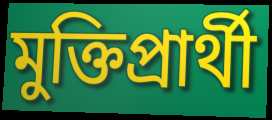
মুক্তিপ্রার্থী